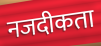
नजदीकता